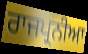
ਰਾਜਪ੍ਰਨੀਆ